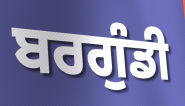
ਬਰਗੁੰਡੀ